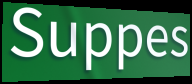
Suppes